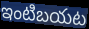
ఇంటిబయట